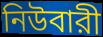
নিউবারী